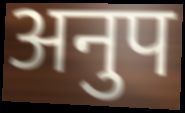
अनुप